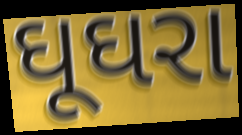
ઘૂઘરા